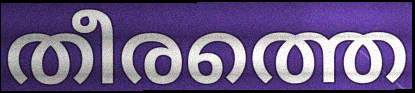
തീരത്തെ